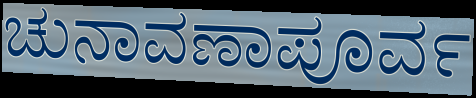
ಚುನಾವಣಾಪೂರ್ವ